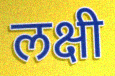
लक्षी